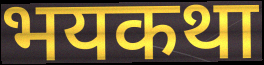
भयकथा